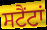
ਸਟੈਂਟਾਂ